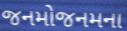
જનમોજનમના